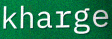
kharge